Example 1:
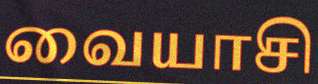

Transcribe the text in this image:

வையாசி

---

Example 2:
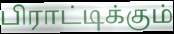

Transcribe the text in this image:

பிராட்டிக்கும்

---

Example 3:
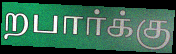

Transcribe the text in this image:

றபார்க்கு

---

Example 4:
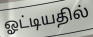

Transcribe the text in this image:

ஓட்டியதில்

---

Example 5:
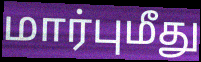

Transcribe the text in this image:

மார்புமீது